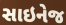
સાઇનેજ